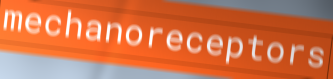
mechanoreceptors